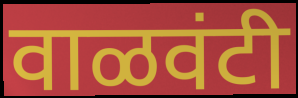
वाळवंटी